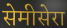
सेमीसेरा